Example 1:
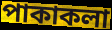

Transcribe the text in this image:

পাকাকলা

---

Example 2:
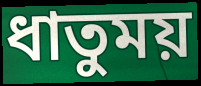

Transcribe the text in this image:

ধাতুময়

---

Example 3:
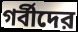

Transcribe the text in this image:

গর্বীদের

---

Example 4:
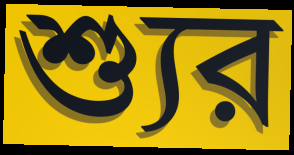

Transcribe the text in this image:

শ্যুর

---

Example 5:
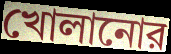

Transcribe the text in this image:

খোলানোর